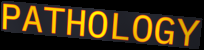
PATHOLOGY